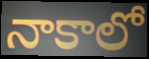
నాకాలో